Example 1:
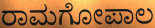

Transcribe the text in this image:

ರಾಮಗೋಪಾಲ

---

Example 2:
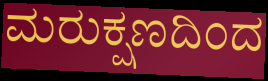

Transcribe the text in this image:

ಮರುಕ್ಷಣದಿಂದ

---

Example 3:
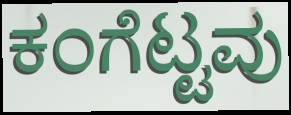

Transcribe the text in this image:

ಕಂಗೆಟ್ಟವು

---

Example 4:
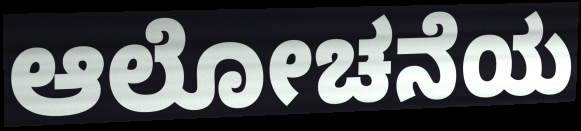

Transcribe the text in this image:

ಆಲೋಚನೆಯ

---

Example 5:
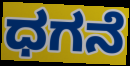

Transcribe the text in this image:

ಧಗನೆ